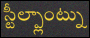
స్టీల్ప్లాంట్ను